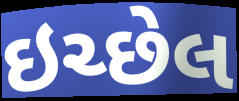
ઇચ્છેલ